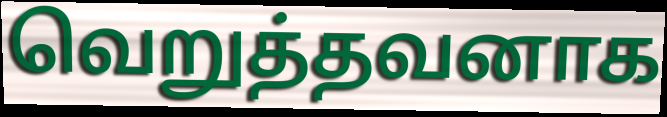
வெறுத்தவனாக